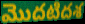
మొదటిదశ